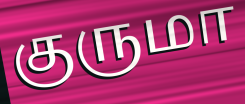
குருமா